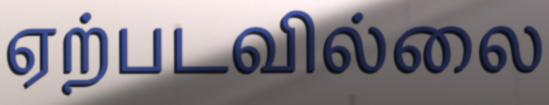
ஏற்படவில்லை